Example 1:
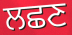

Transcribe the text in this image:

ਲਛਣ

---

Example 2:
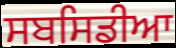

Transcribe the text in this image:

ਸਬਸਿਡੀਆ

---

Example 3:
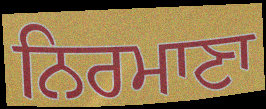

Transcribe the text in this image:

ਨਿਰਮਾਣਾ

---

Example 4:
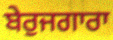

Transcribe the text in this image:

ਬੇਰੁਜਗਾਰਾ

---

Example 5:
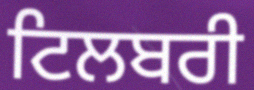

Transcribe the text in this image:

ਟਿਲਬਰੀ